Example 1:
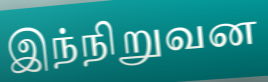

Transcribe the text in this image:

இந்நிறுவன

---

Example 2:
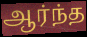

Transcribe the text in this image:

ஆர்ந்த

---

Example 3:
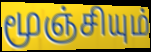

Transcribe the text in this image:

மூஞ்சியும்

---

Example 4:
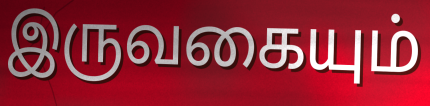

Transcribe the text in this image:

இருவகையும்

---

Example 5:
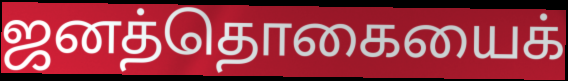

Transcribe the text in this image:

ஜனத்தொகையைக்